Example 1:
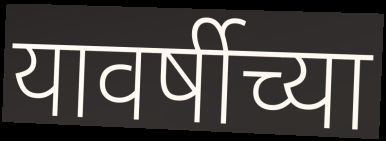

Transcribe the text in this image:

यावर्षीच्या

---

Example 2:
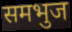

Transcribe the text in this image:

समभुज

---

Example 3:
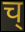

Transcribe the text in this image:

च्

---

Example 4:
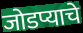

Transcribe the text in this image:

जोडप्याचे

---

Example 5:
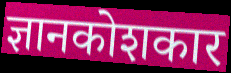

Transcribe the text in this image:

ज्ञानकोशकार